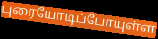
புரையோடிப்போயுள்ள